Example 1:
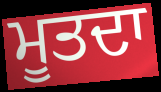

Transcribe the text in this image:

ਮੂਤਦਾ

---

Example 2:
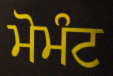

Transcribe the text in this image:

ਮੋਮੰਟ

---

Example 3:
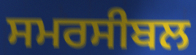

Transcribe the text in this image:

ਸਮਰਸੀਬਲ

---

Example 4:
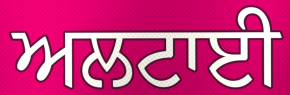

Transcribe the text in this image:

ਅਲਟਾਈ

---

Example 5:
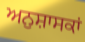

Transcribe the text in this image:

ਅਨੁਸ਼ਾਸਕਾਂ